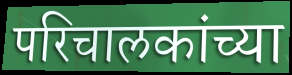
परिचालकांच्या